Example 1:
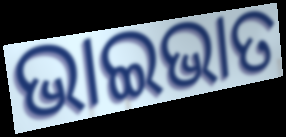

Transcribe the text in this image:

ଭାଇଭାତ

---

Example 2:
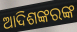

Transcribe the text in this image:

ଆଦିଶଙ୍କରଙ୍କ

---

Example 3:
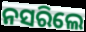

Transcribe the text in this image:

ନସରିଲେ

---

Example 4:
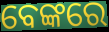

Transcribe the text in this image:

ବେଙ୍କରେ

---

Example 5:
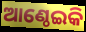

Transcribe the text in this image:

ଆଣ୍ଠେଇକି